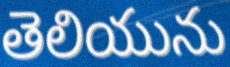
తెలియును